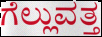
ಗೆಲ್ಲುವತ್ತ